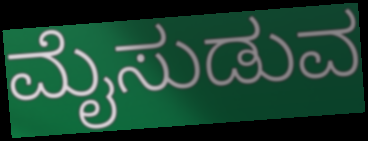
ಮೈಸುಡುವ